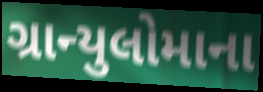
ગ્રાન્યુલોમાના